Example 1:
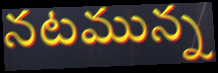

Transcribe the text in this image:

నటమున్న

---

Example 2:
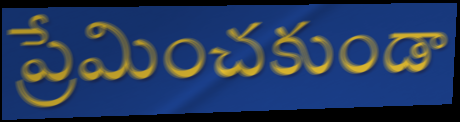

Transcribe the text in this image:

ప్రేమించకుండా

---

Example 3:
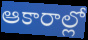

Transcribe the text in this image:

ఆకారాల్లో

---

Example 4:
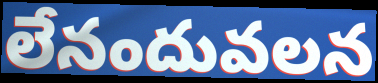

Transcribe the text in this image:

లేనందువలన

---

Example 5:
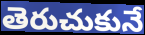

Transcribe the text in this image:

తెరుచుకునే